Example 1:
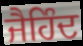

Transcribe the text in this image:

ਜੈਹਿੰਦ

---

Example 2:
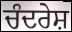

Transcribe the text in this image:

ਚੰਦਰੇਸ਼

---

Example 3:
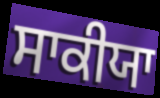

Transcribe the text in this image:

ਸਾਕੀਯਾ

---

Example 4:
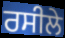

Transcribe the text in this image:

ਰਸੀਲੇ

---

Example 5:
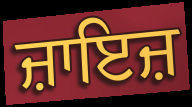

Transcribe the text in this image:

ਜ਼ਾਇਜ਼